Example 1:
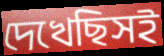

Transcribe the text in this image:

দেখেছিসই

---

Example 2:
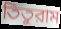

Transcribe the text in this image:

তিতুরাম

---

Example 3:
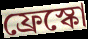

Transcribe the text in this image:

ফ্রেস্কো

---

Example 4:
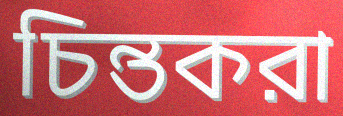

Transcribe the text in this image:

চিন্তকরা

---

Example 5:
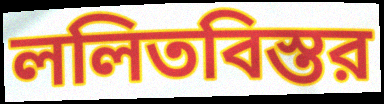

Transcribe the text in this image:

ললিতবিস্তর